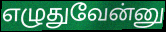
எழுதுவேன்னு